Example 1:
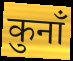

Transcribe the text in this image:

कुनाँ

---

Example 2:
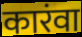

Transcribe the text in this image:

कारंवा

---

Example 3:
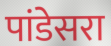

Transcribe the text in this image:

पांडेसरा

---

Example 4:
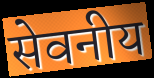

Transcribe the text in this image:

सेवनीय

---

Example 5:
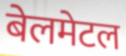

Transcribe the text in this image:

बेलमेटल